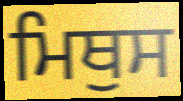
ਮਿਥੁਸ